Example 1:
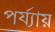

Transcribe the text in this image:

পৰ্য্যায়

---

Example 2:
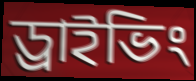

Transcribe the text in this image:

ড্ৰাইভিং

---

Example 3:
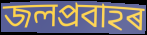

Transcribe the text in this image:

জলপ্ৰবাহৰ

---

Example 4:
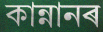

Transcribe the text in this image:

কান্নানৰ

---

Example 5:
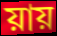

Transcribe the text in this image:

য়ায়